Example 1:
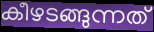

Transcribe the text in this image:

കീഴടങ്ങുന്നത്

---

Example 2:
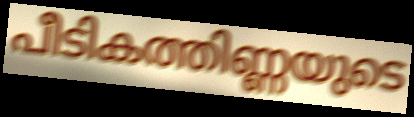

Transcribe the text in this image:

പീടികത്തിണ്ണയുടെ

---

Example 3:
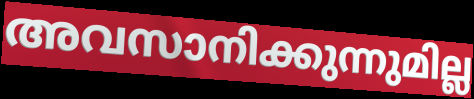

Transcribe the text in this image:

അവസാനിക്കുന്നുമില്ല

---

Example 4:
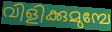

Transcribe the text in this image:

വിളിക്കുമുമ്പേ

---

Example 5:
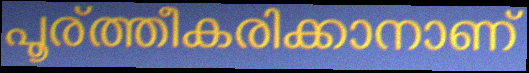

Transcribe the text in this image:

പൂര്ത്തീകരിക്കാനാണ്